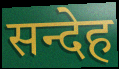
सन्देह